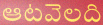
ఆటవెలది